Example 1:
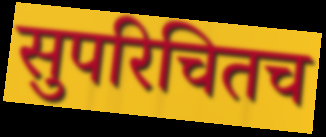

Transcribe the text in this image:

सुपरिचितच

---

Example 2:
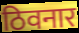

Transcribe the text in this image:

ठिवनार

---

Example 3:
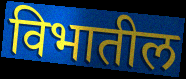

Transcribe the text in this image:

विभातील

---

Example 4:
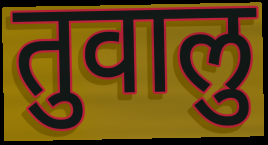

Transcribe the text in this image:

तुवालु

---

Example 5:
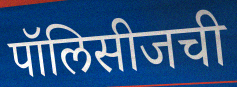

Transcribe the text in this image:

पॉलिसीजची